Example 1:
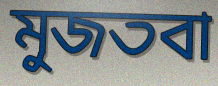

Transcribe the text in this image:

মুজতবা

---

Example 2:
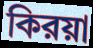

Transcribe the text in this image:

কিরয়া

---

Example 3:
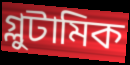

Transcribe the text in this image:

গ্লুটামিক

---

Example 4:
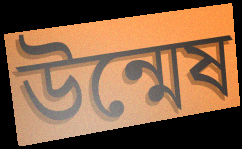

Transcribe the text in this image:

উন্মেষ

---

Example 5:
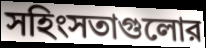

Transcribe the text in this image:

সহিংসতাগুলোর